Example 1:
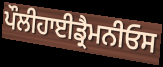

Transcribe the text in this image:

ਪੌਲੀਹਾਈਡ੍ਰੈਮਨੀਓਸ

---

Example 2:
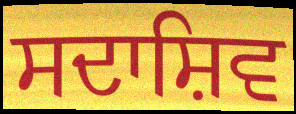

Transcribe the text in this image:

ਸਦਾਸ਼ਿਵ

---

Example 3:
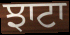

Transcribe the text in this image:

ਝਾਟਾ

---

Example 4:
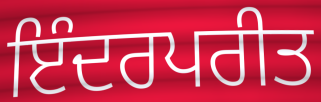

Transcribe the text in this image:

ਇੰਦਰਪਰੀਤ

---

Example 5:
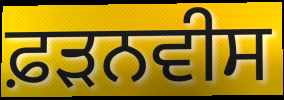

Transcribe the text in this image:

ਫ਼ੜਨਵੀਸ